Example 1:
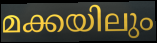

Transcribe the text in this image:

മക്കയിലും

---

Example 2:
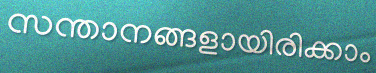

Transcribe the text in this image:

സന്താനങ്ങളായിരിക്കാം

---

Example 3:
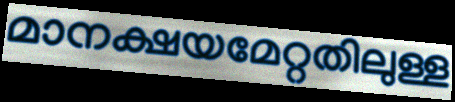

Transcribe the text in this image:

മാനക്ഷയമേറ്റതിലുള്ള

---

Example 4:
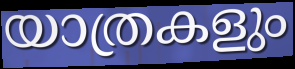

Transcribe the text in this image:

യാത്രകളും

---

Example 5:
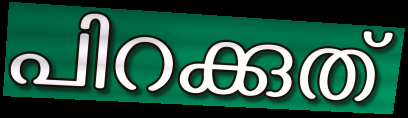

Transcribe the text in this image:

പിറക്കുത്